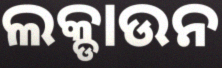
ଲକ୍ଡାଉନ